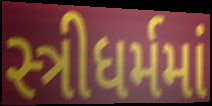
સ્ત્રીધર્મમાં